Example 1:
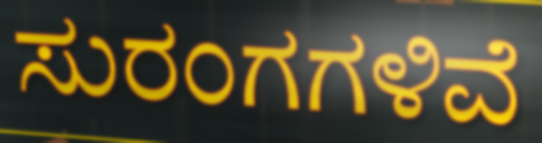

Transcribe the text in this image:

ಸುರಂಗಗಳಿವೆ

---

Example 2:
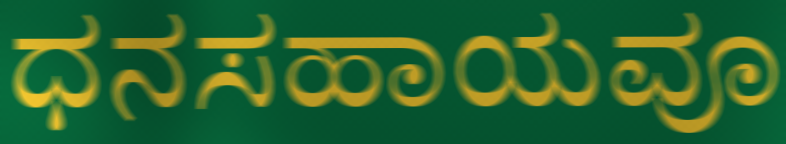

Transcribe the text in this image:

ಧನಸಹಾಯವೂ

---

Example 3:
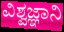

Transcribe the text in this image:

ವಿಶ್ವಜ್ಞಾನಿ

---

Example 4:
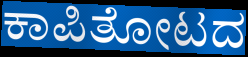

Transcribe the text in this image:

ಕಾಪಿತೋಟದ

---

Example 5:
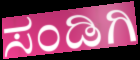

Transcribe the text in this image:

ಸಂಡಿಗಿ